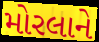
મોરલાને